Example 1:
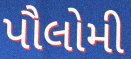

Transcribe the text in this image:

પૌલોમી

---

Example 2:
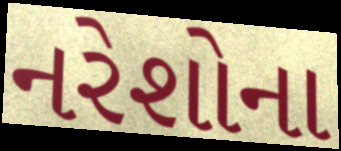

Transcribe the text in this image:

નરેશોના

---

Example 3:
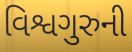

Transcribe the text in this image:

વિશ્વગુરુની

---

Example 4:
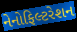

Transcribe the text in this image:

નેનોફિલ્ટરેશન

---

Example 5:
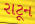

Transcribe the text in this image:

રાટૂન